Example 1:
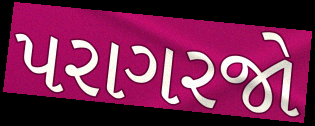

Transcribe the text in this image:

પરાગરજો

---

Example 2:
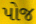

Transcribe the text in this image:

પોજ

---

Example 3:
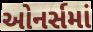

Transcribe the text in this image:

ઓનર્સમાં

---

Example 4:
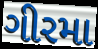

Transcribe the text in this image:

ગીરમા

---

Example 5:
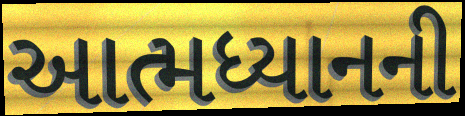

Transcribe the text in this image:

આત્મધ્યાનની